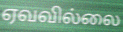
ஏவவில்லை